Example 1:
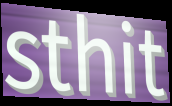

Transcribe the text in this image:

sthit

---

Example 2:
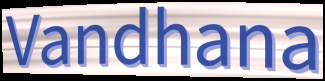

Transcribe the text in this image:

Vandhana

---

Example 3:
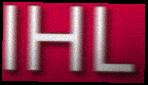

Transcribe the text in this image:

IHL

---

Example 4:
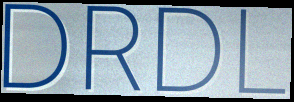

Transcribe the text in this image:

DRDL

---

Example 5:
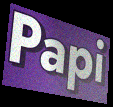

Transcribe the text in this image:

Papi